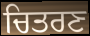
ਚਿਤਰਣ